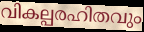
വികല്പരഹിതവും